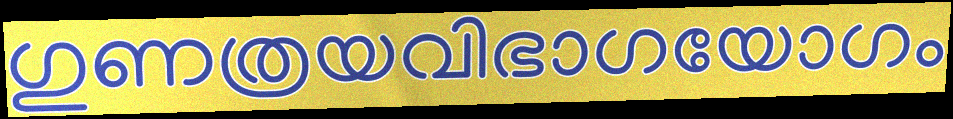
ഗുണത്രയവിഭാഗയോഗം